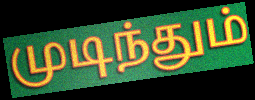
முடிந்தும்